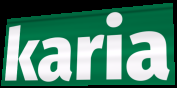
karia